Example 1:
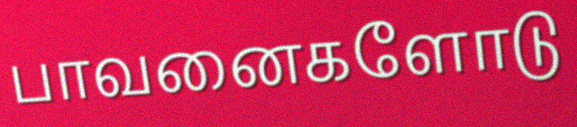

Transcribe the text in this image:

பாவனைகளோடு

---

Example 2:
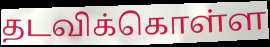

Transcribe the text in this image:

தடவிக்கொள்ள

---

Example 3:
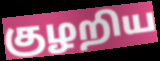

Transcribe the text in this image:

குழறிய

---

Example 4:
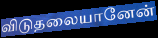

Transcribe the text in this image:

விடுதலையானேன்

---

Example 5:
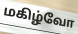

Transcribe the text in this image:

மகிழ்வோ